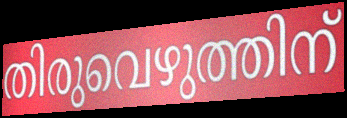
തിരുവെഴുത്തിന്